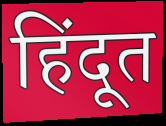
हिंदूत